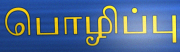
பொழிப்பு